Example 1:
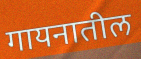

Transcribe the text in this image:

गायनातील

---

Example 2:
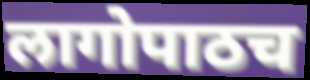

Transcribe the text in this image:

लागोपाठच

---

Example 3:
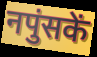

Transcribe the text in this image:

नपुंसकें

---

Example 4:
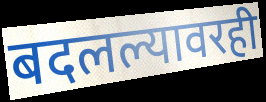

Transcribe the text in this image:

बदलल्यावरही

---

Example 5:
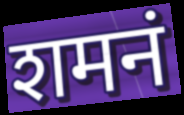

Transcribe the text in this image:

शमनं